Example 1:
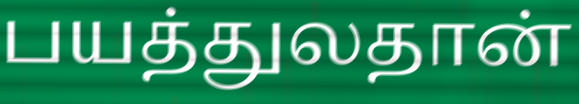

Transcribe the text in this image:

பயத்துலதான்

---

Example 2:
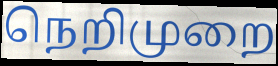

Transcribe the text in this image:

நெறிமுறை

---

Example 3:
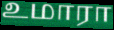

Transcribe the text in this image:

உமாரா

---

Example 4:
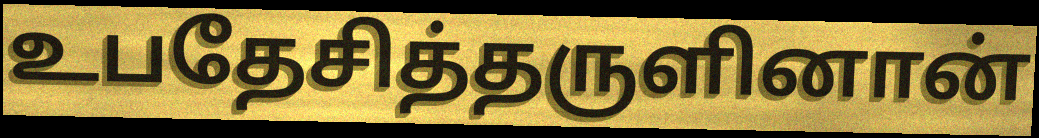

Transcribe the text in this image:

உபதேசித்தருளினான்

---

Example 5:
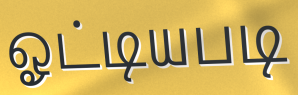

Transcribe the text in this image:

ஓட்டியபடி